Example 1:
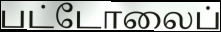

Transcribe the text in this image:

பட்டோலைப்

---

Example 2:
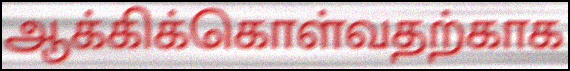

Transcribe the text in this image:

ஆக்கிக்கொள்வதற்காக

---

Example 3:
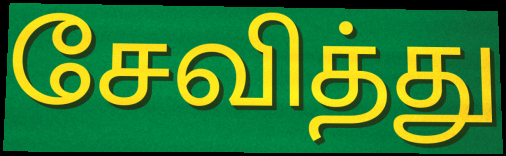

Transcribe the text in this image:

சேவித்து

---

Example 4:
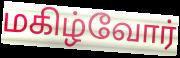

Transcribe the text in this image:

மகிழ்வோர்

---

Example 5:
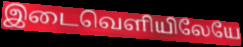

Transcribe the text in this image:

இடைவெளியிலேயே